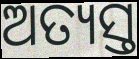
ଅତ୍ୟସ୍ତ